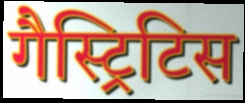
गैस्ट्रिटिस